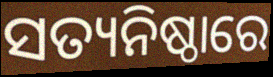
ସତ୍ୟନିଷ୍ଠାରେ